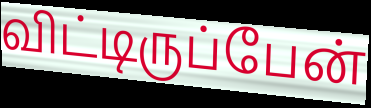
விட்டிருப்பேன்